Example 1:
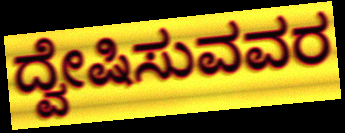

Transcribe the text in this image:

ದ್ವೇಷಿಸುವವರ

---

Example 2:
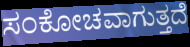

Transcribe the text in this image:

ಸಂಕೋಚವಾಗುತ್ತದೆ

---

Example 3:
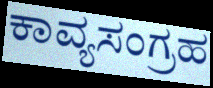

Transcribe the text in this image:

ಕಾವ್ಯಸಂಗ್ರಹ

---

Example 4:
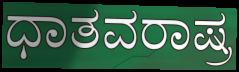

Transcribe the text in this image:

ಧಾತವರಾಷ್ರ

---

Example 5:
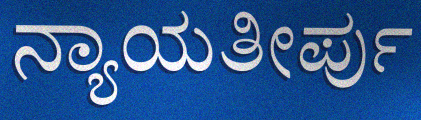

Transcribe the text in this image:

ನ್ಯಾಯತೀರ್ಪು